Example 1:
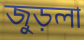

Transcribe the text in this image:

জুড়লা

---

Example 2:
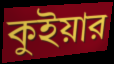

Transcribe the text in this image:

কুইয়ার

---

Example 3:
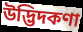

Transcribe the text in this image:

উদ্ভিদকণা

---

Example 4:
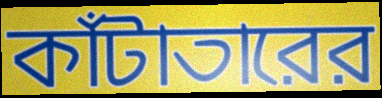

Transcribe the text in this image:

কাঁটাতারের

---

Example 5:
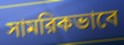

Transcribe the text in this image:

সামরিকভাবে